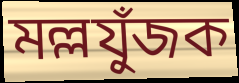
মল্লযুঁজক